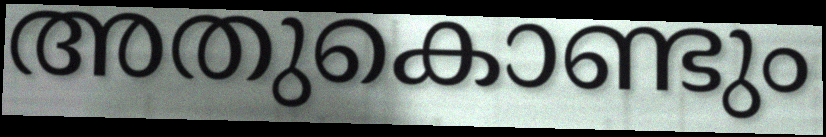
അതുകൊണ്ടും